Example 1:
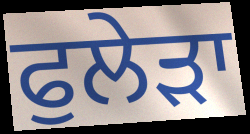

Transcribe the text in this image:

ਫੁਲੇੜਾ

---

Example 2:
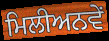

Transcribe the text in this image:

ਮਿਲੀਅਨਵੇਂ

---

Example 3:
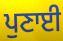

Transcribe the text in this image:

ਪੁਣਾਈ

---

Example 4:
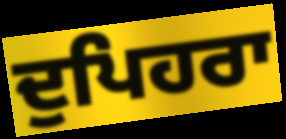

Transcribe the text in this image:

ਦੁਪਿਹਰਾ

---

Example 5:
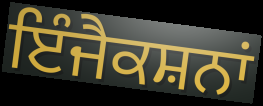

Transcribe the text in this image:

ਇੰਜੈਕਸ਼ਨਾਂ